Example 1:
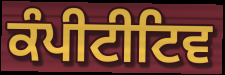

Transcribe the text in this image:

ਕੰਪੀਟੀਟਿਵ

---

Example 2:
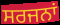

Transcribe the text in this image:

ਸਰਜਨਾਂ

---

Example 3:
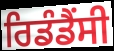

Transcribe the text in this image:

ਰਿਡੰਡੈਂਸੀ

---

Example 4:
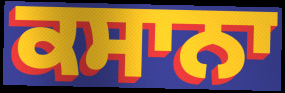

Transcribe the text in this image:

ਕਸਾਨਾ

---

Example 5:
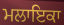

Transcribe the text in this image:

ਮਲਾਇਕਾ